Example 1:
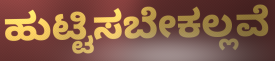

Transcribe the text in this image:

ಹುಟ್ಟಿಸಬೇಕಲ್ಲವೆ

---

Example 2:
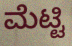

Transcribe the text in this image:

ಮೆಟ್ಟಿ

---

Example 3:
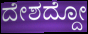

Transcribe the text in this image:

ದೇಶದ್ದೋ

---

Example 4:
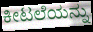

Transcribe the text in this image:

ಕೀಟಲೆಯನ್ನು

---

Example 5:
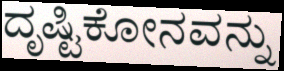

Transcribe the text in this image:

ದೃಷ್ಟಿಕೋನವನ್ನು